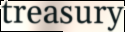
treasury